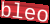
bleo